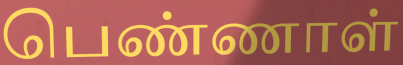
பெண்ணாள்